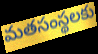
మతసంస్థలకు